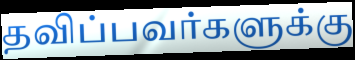
தவிப்பவர்களுக்கு